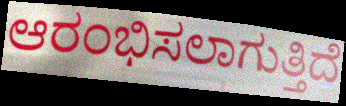
ಆರಂಭಿಸಲಾಗುತ್ತಿದೆ